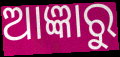
ଆଜ୍ଞାରୁ